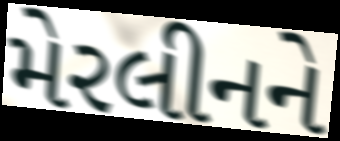
મેરલીનને